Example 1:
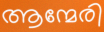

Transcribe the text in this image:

ആന്മേരി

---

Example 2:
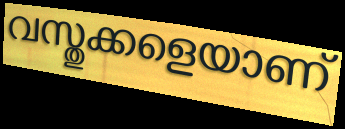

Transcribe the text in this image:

വസ്തുക്കളെയാണ്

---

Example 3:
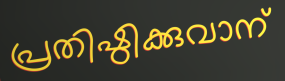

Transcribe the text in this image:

പ്രതിഷ്ഠിക്കുവാന്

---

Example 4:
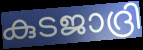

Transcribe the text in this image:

കുടജാദ്രി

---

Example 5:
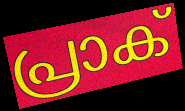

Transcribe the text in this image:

പ്രാക്